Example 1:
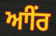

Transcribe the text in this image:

ਆੀਂਰ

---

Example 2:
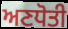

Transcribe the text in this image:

ਅਣਧੋਤੀ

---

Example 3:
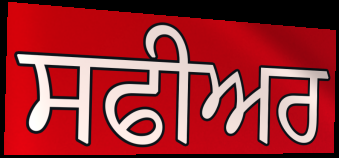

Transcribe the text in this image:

ਸਫੀਅਰ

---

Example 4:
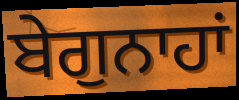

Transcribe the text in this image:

ਬੇਗੁਨਾਹਾਂ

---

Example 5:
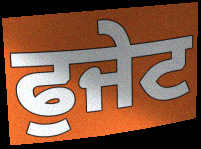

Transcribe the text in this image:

ਫੁਜੇਟ